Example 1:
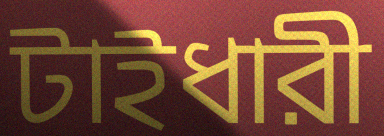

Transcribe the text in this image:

টাইধারী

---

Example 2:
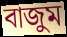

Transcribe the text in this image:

বাজুম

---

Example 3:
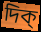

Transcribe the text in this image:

দিক্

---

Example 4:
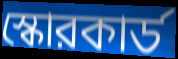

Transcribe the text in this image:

স্কোরকার্ড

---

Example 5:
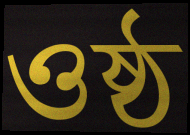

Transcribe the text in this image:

ওষ্ঠ